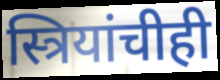
स्त्रियांचीही